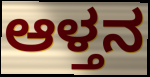
ಆಳ್ತನ